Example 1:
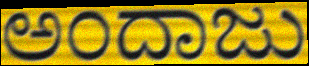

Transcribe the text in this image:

ಅಂದಾಜು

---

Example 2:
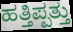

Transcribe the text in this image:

ಹತ್ತಿಪ್ಪತ್ತು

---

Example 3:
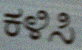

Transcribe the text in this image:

ಕಳಿಸಿ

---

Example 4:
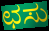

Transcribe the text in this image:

ಛಸು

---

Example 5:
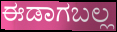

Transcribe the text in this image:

ಈಡಾಗಬಲ್ಲ